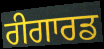
ਰੀਗਾਰਡ